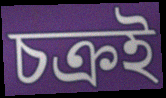
চক্ৰই